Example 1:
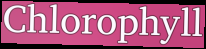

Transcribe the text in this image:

Chlorophyll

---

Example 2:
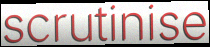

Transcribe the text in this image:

scrutinise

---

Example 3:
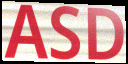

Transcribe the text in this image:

ASD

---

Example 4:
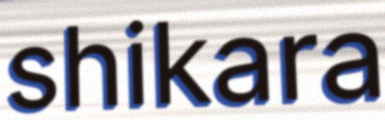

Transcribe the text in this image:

shikara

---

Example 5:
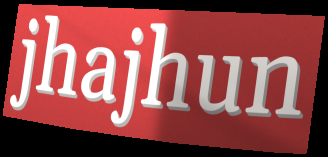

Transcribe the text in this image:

jhajhun